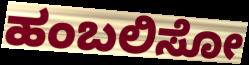
ಹಂಬಲಿಸೋ